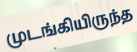
முடங்கியிருந்த